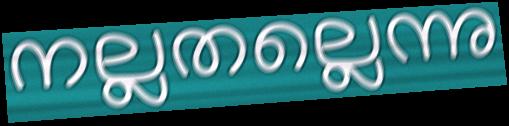
നല്ലതല്ലെന്നു